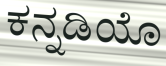
ಕನ್ನಡಿಯೊ